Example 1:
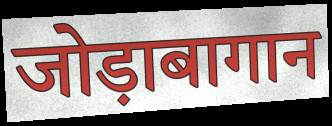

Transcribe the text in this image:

जोड़ाबागान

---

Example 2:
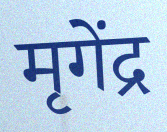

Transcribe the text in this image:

मृगेंद्र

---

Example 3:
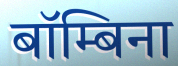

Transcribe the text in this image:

बॉम्बिना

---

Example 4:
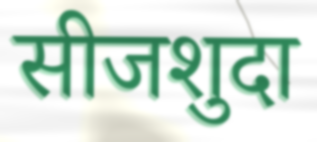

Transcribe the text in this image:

सीजशुदा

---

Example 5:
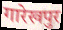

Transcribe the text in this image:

गारेखपुर